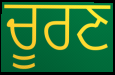
ਚੂਰਣ